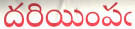
దరియింపఁ